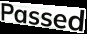
Passed